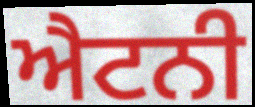
ਐਟਨੀ